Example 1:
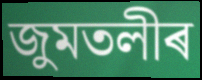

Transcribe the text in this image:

জুমতলীৰ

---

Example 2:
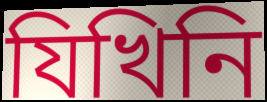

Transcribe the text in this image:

যিখিনি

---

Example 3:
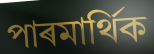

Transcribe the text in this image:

পাৰমাৰ্থিক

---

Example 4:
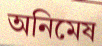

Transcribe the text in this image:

অনিমেষ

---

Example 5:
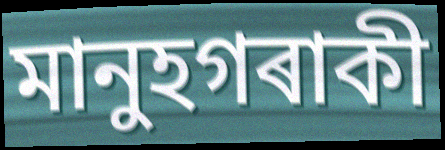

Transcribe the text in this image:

মানুহগৰাকী